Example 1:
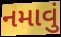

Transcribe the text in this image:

નમાવું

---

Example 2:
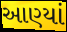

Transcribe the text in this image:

આણ્યાં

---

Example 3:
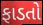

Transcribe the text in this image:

ફાડતો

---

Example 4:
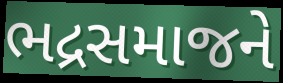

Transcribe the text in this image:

ભદ્રસમાજને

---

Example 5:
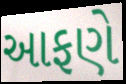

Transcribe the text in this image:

આફણે